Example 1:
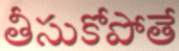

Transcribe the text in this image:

తీసుకోపోతే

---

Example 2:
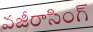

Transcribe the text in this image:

వజీరాసింగ్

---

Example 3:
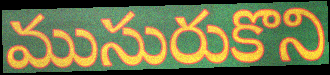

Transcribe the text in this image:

ముసురుకొని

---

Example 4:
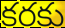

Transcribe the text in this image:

కరకు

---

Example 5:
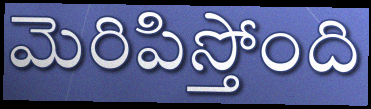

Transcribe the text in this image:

మెరిపిస్తోంది